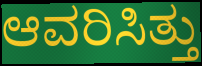
ಆವರಿಸಿತ್ತು